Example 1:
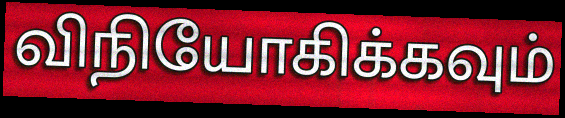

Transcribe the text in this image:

விநியோகிக்கவும்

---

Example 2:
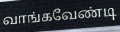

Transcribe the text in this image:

வாங்கவேண்டி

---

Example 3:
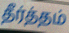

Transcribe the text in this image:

தீர்த்தம்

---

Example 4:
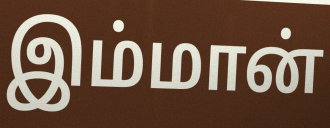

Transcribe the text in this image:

இம்மான்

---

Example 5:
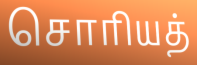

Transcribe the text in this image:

சொரியத்